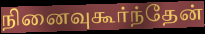
நினைவுகூர்ந்தேன்